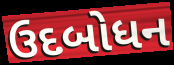
ઉદબોધન